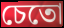
চেতো